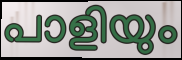
പാളിയും